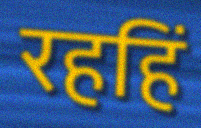
रहहिं